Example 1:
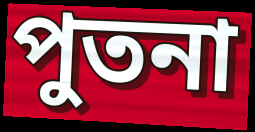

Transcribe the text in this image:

পুতনা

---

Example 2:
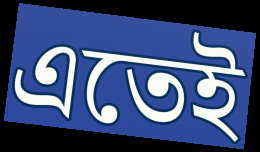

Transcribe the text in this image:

এতেই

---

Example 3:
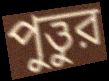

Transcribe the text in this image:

পুত্তুর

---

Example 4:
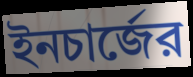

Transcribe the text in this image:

ইনচার্জের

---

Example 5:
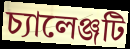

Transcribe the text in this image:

চ্যালেঞ্জটি